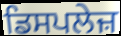
ਡਿਸਪਲੇਜ਼